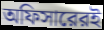
অফিসারেরই